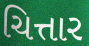
ચિત્તાર